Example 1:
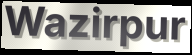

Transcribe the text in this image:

Wazirpur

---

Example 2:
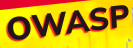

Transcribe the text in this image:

OWASP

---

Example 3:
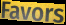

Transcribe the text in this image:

Favors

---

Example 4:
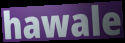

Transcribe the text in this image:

hawale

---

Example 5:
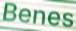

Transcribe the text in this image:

Benes